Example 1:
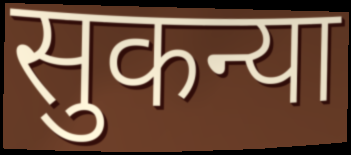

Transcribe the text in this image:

सुकन्या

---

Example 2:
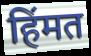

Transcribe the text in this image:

हिंमत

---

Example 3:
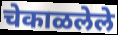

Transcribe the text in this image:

चेकाळलेले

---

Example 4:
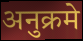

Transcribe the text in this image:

अनुक्रमे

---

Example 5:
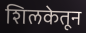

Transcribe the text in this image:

शिलकेतून